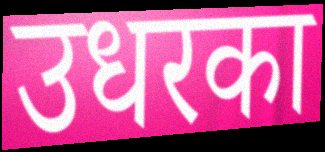
उधरका